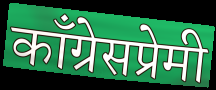
काँग्रेसप्रेमी